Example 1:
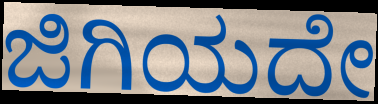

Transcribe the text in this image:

ಜಿಗಿಯದೇ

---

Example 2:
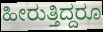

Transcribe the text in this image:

ಹೀರುತ್ತಿದ್ದರೂ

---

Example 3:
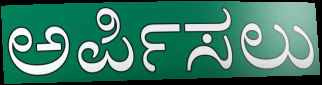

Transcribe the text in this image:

ಅರ್ಪಿಸಲು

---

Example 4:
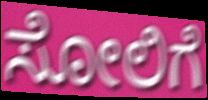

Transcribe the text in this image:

ಸೋಲಿಗೆ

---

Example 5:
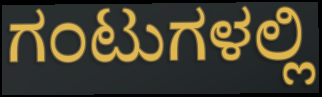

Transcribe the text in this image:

ಗಂಟುಗಳಲ್ಲಿ